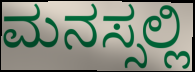
ಮನಸ್ಸಲ್ಲಿ